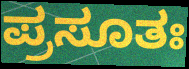
ಪ್ರಸೂತಃ